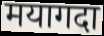
मयागदा